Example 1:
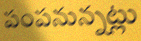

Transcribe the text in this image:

పంపనున్నట్లు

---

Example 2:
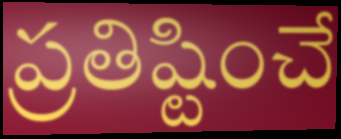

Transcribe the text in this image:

ప్రతిష్టించే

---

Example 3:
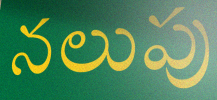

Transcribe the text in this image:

నలుపు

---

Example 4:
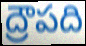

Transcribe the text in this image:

ద్రౌపది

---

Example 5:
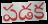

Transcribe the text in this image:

పడక